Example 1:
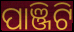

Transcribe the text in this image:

ପାଞ୍ଜିଟି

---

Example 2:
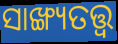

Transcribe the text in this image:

ସାଙ୍ଖ୍ୟତତ୍ତ୍ଵ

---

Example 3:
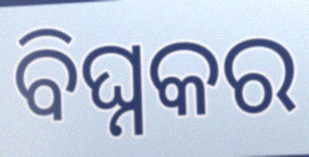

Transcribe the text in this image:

ବିଘ୍ନକର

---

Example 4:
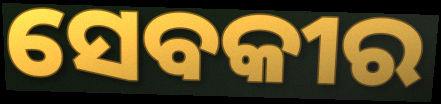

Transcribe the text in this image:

ସେବକୀର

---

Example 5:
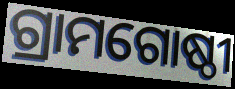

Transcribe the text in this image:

ଗ୍ରାମଗୋଷ୍ଠୀ